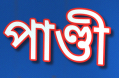
পাণ্ডী